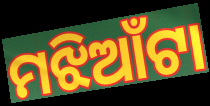
ମଝିଆଁଟା